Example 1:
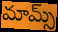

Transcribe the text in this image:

మామ్స్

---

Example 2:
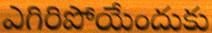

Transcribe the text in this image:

ఎగిరిపోయేందుకు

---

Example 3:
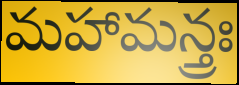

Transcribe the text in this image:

మహామన్త్రః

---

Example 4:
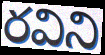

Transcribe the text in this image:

రవిని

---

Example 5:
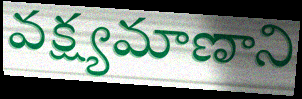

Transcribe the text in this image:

వక్ష్యమాణాని